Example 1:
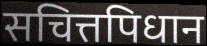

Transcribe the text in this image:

सचित्तपिधान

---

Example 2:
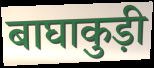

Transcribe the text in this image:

बाघाकुड़ी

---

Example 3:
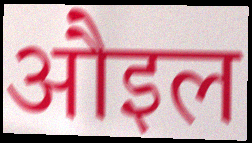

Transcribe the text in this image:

औइल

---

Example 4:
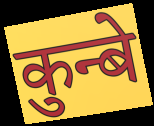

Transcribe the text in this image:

कुन्बे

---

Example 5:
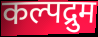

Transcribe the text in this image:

कल्पद्रुम